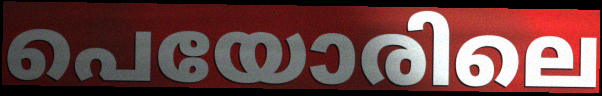
പെയോരിലെ